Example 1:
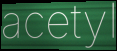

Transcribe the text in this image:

acetyl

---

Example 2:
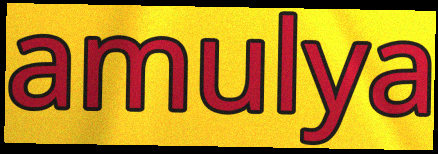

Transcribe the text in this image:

amulya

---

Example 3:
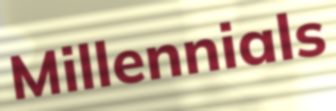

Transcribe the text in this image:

Millennials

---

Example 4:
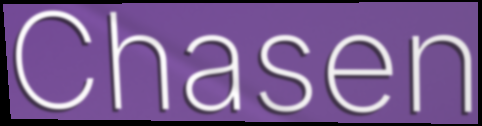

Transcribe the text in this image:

Chasen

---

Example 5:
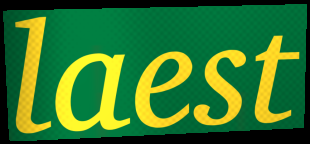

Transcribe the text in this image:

laest